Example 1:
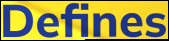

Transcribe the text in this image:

Defines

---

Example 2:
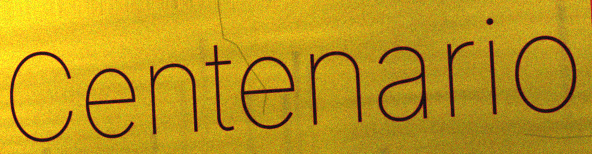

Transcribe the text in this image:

Centenario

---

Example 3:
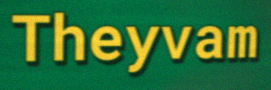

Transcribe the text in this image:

Theyvam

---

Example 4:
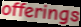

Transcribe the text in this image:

offerings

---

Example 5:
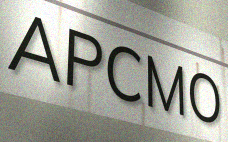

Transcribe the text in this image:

APCMO